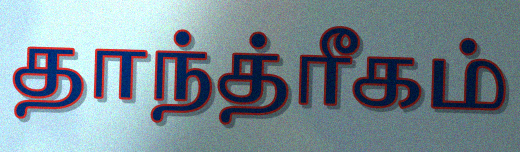
தாந்த்ரீகம்